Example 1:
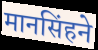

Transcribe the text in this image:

मानसिंहने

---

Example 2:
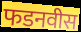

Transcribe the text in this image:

फडनवीस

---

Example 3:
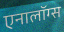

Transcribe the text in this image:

एनालॉग्स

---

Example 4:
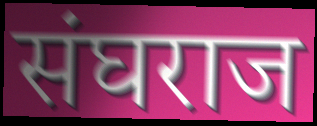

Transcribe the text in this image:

संघराज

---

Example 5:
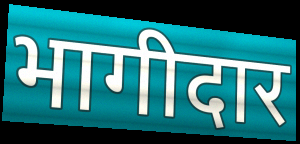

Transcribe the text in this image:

भागीदार